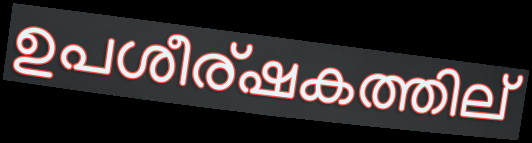
ഉപശീര്ഷകത്തില്